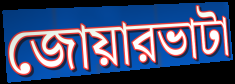
জোয়ারভাটা